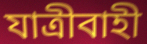
যাত্রীবাহী